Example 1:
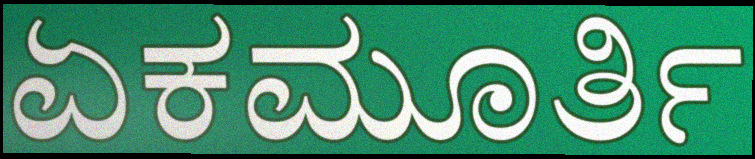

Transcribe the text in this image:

ಏಕಮೂರ್ತಿ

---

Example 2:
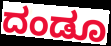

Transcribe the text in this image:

ದಂಡೂ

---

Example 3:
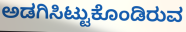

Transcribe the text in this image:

ಅಡಗಿಸಿಟ್ಟುಕೊಂಡಿರುವ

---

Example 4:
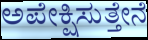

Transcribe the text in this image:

ಅಪೇಕ್ಷಿಸುತ್ತೇನೆ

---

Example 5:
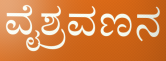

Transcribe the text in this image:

ವೈಶ್ರವಣನ